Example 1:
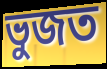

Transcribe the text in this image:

ভুজত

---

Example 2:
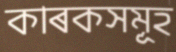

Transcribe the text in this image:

কাৰকসমূহ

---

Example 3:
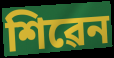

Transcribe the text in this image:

শিৱেন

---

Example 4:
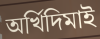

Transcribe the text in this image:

অৰ্খিদিমাই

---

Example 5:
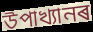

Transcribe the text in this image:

উপাখ্যানৰ